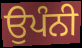
ਉਪੰਨੀ